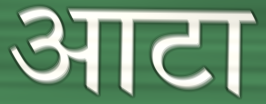
आटा